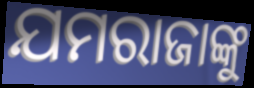
ଯମରାଜାଙ୍କୁ